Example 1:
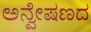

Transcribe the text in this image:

ಅನ್ವೇಷಣದ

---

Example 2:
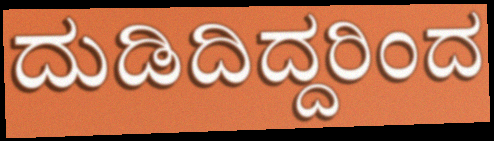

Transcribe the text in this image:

ದುಡಿದಿದ್ದರಿಂದ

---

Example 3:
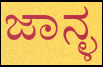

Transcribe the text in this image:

ಜಾನ್ಳ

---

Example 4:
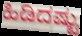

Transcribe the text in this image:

ಹಿಡಿದಷ್ಟು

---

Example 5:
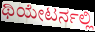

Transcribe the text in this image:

ಥಿಯೇಟರ್ನಲ್ಲಿ